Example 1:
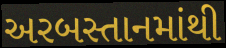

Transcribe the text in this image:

અરબસ્તાનમાંથી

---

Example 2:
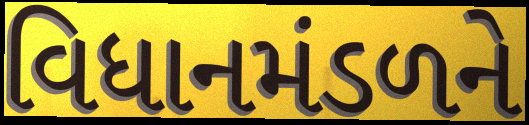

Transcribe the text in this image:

વિધાનમંડળને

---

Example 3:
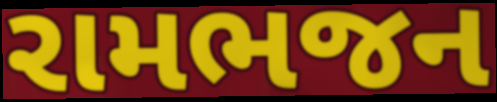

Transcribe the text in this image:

રામભજન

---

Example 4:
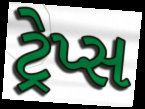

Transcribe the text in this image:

ટ્રેપ્સ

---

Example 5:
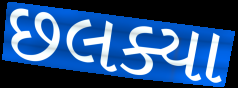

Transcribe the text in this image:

છલક્યા